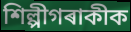
শিল্পীগৰাকীক